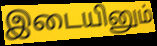
இடையினும்